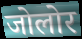
जोलोर